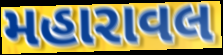
મહારાવલ